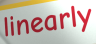
linearly